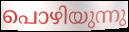
പൊഴിയുന്നു